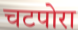
चटपोरा